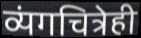
व्यंगचित्रेही